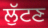
ਲੁੱਟਣ